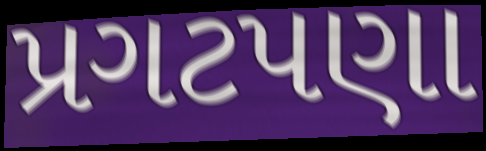
પ્રગટપણા